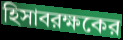
হিসাবরক্ষকের